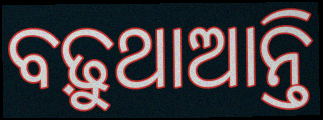
ବଢ଼ୁଥାଆନ୍ତି